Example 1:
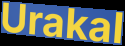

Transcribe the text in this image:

Urakal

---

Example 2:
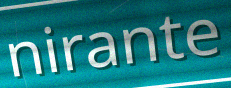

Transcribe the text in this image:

nirante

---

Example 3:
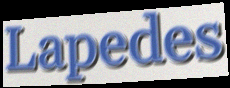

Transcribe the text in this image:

Lapedes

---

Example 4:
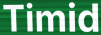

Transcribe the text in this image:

Timid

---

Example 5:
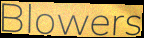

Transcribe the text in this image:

Blowers